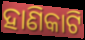
ହାଣିକାଟି